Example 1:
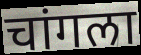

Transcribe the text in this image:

चांगला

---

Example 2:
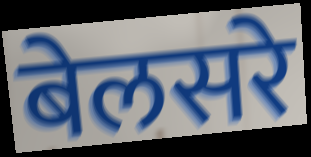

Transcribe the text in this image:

बेलसरे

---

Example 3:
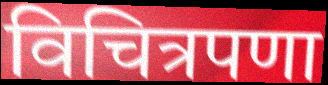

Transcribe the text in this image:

विचित्रपणा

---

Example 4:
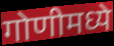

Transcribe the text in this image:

गोणीमध्ये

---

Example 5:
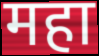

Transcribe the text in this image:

महा